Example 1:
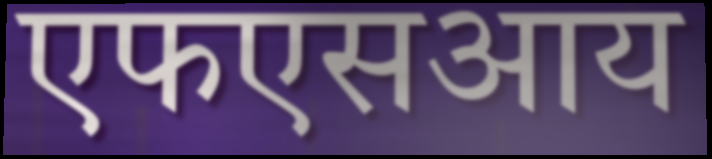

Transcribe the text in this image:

एफएसआय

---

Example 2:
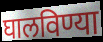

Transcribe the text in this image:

घालविण्या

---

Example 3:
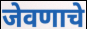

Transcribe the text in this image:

जेवणाचे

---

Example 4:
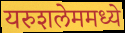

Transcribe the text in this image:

यरुशलेममध्ये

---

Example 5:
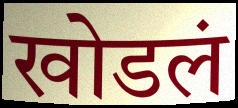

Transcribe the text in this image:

खोडलं